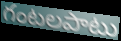
గంటలపాటు